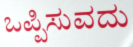
ಒಪ್ಪಿಸುವದು